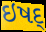
ઇષદ્